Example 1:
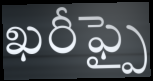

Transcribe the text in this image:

ఖరీఫ్పై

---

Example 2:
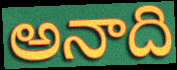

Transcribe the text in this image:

అనాది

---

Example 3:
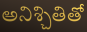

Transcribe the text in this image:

అనిశ్చితితో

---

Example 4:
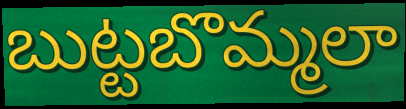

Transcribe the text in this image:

బుట్టబొమ్మలా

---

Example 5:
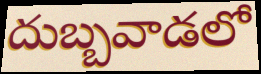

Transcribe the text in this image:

దుబ్బవాడలో